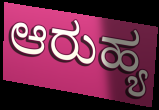
ಆರುಹ್ಯ